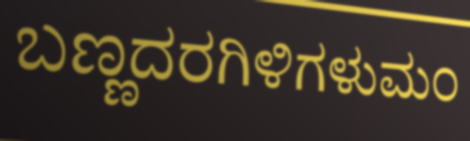
ಬಣ್ಣದರಗಿಳಿಗಳುಮಂ